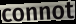
connot